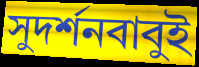
সুদর্শনবাবুই